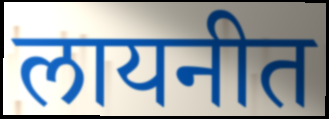
लायनीत